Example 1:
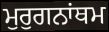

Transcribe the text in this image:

ਮੁਰੁਗਨਾਂਥਮ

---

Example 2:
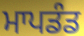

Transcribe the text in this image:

ਮਾਪਡੰਡ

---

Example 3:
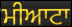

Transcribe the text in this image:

ਮੀਆਟਾ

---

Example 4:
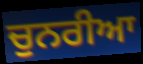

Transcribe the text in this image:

ਚੁਨਰੀਆ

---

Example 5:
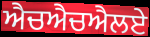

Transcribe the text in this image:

ਐਚਐਚਐਲਏ